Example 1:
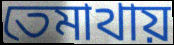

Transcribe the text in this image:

তেমাথায়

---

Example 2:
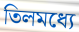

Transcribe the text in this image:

তিলমধ্যে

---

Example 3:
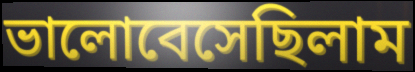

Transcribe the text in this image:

ভালোবেসেছিলাম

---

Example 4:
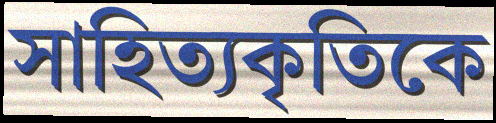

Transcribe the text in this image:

সাহিত্যকৃতিকে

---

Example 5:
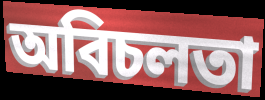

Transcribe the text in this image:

অবিচলতা